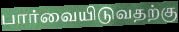
பார்வையிடுவதற்கு